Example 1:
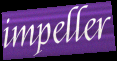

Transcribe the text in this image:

impeller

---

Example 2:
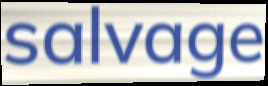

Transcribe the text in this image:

salvage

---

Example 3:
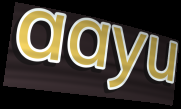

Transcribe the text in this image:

aayu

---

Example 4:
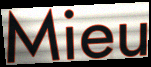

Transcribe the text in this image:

Mieu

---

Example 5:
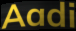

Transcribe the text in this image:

Aadi